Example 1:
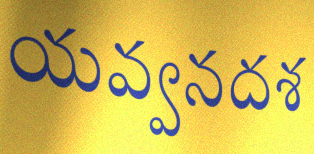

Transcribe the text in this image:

యవ్వనదశ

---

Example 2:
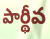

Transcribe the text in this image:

పార్థీవ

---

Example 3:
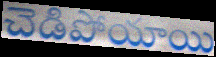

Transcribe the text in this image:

చెడిపోయాయి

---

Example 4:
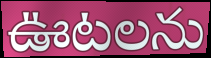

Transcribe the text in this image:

ఊటలను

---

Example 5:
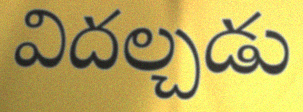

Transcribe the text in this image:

విదల్చడు